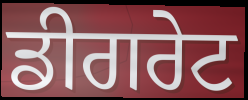
ਡੀਗਰੇਟ